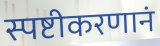
स्पष्टीकरणानं